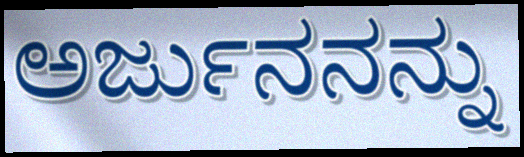
ಅರ್ಜುನನನ್ನು